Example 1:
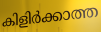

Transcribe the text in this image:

കിളിർക്കാത്ത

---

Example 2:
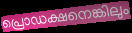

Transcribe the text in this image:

പ്രൊഡക്ഷനെങ്കിലും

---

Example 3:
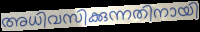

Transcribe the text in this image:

അധിവസിക്കുന്നതിനായി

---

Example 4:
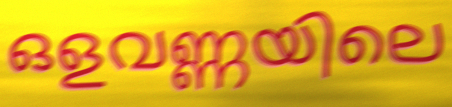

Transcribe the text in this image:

ഒളവണ്ണയിലെ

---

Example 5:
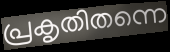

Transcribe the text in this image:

പ്രകൃതിതന്നെ